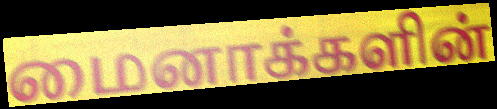
மைனாக்களின்